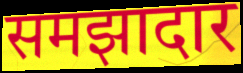
समझादार